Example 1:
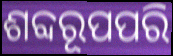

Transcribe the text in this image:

ଶବ୍ଦରୂପପରି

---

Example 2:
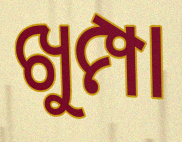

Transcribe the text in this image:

ଖୁମ୍ପା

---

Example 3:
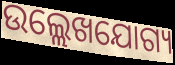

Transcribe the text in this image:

ଉଲ୍ଲେଖଯୋଗ୍ୟ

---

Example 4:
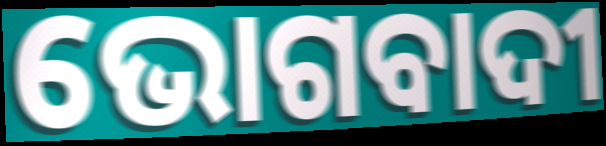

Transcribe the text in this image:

ଭୋଗବାଦୀ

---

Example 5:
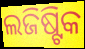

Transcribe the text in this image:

ଲଜିଷ୍ଟିକ